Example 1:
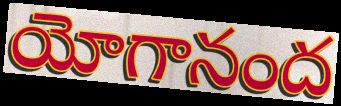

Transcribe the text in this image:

యోగానంద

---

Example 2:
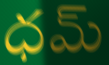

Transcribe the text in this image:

ధమ్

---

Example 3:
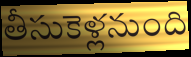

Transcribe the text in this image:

తీసుకెళ్లనుంది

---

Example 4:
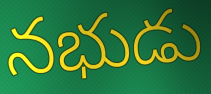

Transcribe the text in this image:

నభుడు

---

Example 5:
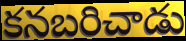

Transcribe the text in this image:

కనబరిచాడు